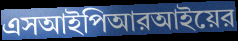
এসআইপিআরআইয়ের